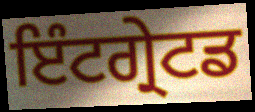
ਇੰਟਗ੍ਰੇਟਡ